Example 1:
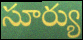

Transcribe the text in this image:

సూర్యు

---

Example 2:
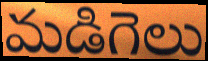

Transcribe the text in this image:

మడిగెలు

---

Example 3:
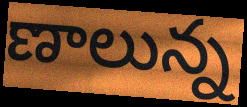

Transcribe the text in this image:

ణాలున్న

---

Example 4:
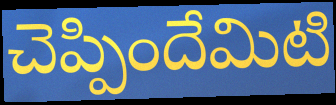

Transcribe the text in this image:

చెప్పిందేమిటి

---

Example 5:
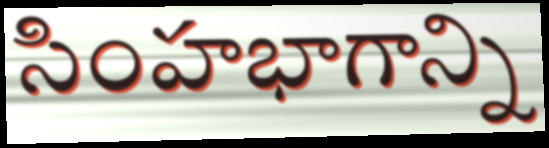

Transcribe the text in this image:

సింహభాగాన్ని